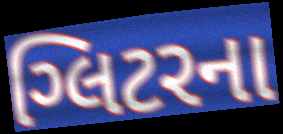
ગ્લિટરના